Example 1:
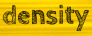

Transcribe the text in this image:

density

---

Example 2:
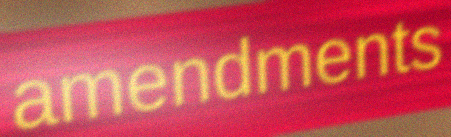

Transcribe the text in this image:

amendments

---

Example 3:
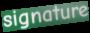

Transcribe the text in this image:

signature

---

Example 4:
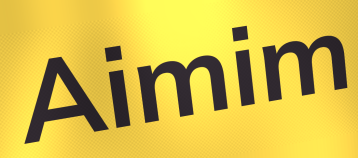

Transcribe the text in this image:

Aimim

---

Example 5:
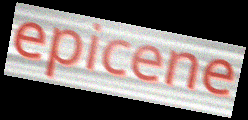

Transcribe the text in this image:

epicene